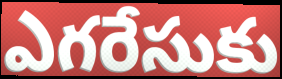
ఎగరేసుకు